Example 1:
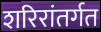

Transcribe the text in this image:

शरिरांतर्गत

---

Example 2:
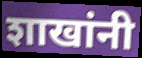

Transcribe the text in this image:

शाखांनी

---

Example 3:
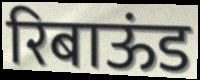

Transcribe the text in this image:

रिबाऊंड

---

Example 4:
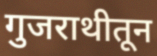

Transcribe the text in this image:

गुजराथीतून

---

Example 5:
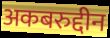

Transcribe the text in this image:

अकबरुद्दीन